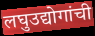
लघुउद्योगांची